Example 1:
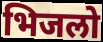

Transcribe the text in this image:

भिजलो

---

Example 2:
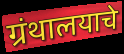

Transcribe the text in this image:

ग्रंथालयाचे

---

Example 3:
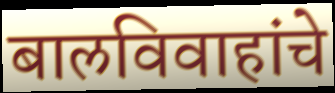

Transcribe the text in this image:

बालविवाहांचे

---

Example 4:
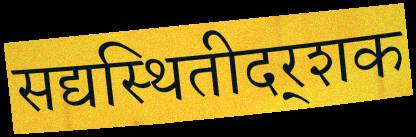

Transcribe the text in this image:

सद्यस्थितीदर्शक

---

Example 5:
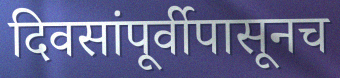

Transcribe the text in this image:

दिवसांपूर्वीपासूनच